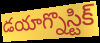
డయాగ్నొస్టిక్